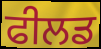
ਫੀਲਡ